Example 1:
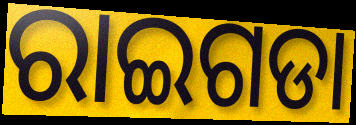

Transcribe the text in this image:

ରାଇଗଡା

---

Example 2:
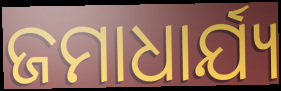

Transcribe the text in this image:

ଜମାଧାର୍ଯ୍ୟ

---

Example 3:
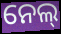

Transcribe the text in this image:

ନେଲ୍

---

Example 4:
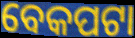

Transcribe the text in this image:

ବେକପଟା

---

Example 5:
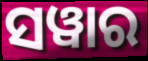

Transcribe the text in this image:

ସୱାର